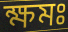
ক্ষমঃ